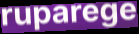
ruparege